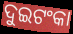
ଦୁଇଟଂକା